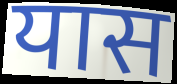
यास